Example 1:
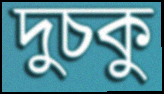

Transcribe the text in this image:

দুচকু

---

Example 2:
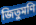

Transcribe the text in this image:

জিতুমণি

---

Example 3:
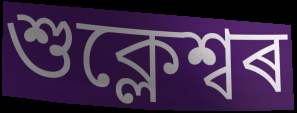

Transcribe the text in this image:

শুক্লেশ্বৰ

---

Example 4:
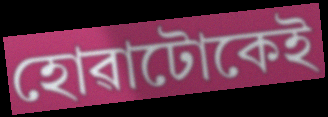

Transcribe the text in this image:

হোৱাটোকেই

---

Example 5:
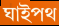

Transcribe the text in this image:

ঘাইপথ